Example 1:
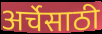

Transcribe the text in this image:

अर्चेसाठी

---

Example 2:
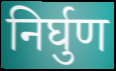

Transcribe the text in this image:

निर्घुण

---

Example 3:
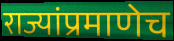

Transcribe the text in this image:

राज्यांप्रमाणेच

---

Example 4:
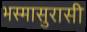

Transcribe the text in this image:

भस्मासुरासी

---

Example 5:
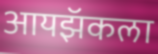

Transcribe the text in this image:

आयझॅकला